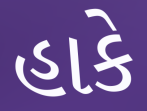
હાકે